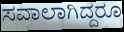
ಸವಾಲಾಗಿದ್ದರೂ